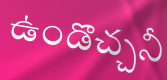
ఉండొచ్చనీ